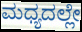
ಮಧ್ಯದಲ್ಲೇ